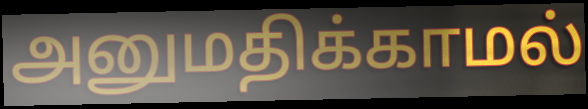
அனுமதிக்காமல்